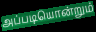
அப்படியொன்றும்